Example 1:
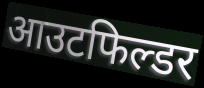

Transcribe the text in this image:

आउटफिल्डर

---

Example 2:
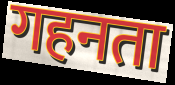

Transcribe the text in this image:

गहनता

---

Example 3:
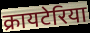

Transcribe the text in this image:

क्रायटेरिया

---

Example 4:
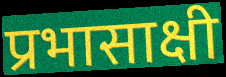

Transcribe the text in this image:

प्रभासाक्षी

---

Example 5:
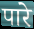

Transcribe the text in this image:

पारे